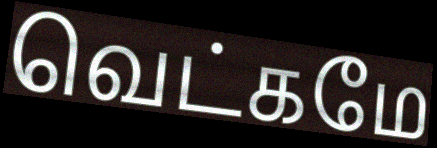
வெட்கமே